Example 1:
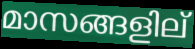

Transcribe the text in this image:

മാസങ്ങളില്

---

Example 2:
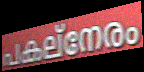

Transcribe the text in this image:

പകല്നേരം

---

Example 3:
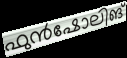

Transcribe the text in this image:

ഫുൻഷോലിങ്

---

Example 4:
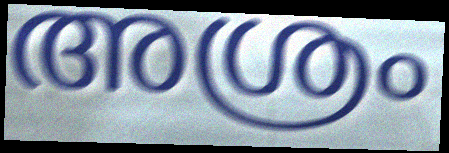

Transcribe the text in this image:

അശ്രം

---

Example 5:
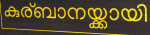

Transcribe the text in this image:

കുര്ബാനയ്ക്കായി